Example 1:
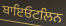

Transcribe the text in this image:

ਬਾਇਓਟਲਿਨ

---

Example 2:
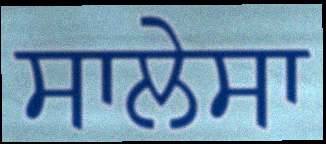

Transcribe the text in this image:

ਸਾਲੇਸਾ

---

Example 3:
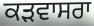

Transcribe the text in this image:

ਕੜਵਾਸਰਾ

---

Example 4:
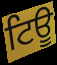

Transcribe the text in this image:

ਟਿਊ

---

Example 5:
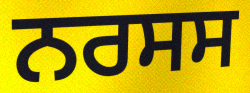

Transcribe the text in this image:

ਨਰਸਸ